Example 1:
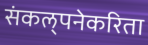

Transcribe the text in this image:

संकल्पनेकरिता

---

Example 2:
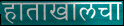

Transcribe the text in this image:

हाताखालचा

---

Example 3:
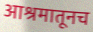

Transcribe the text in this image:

आश्रमातूनच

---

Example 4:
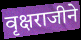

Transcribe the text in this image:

वृक्षराजीने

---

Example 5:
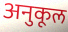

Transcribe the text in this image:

अनुकूल